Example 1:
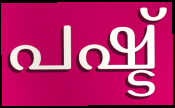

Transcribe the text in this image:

പഷ്ട്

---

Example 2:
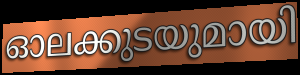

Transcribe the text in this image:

ഓലക്കുടയുമായി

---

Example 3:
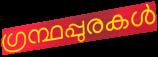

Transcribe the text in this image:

ഗ്രന്ഥപ്പുരകൾ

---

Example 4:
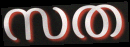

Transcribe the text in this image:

സത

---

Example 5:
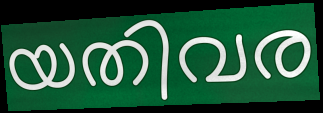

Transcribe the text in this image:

യതിവര